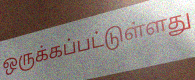
ஒருக்கப்பட்டுள்ளது